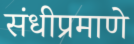
संधीप्रमाणे